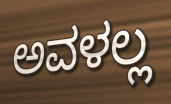
ಅವಳಲ್ಲ